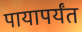
पायापर्यंत